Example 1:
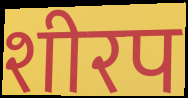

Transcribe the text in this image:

शीरप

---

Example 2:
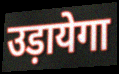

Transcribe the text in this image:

उड़ायेगा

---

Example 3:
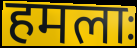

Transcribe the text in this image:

हमलाः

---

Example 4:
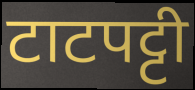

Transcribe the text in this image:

टाटपट्टी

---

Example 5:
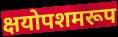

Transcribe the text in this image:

क्षयोपशमरूप